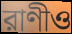
রাণীও